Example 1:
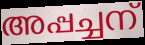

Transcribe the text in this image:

അപ്പച്ചന്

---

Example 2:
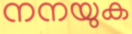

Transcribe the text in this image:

നനയുക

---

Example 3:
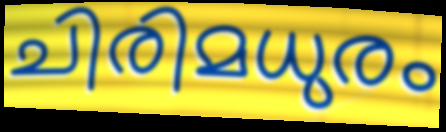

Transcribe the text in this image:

ചിരിമധുരം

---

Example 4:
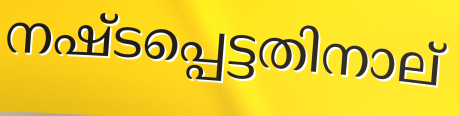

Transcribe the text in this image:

നഷ്ടപ്പെട്ടതിനാല്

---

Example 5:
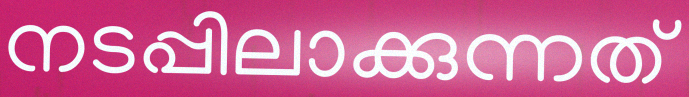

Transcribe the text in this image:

നടപ്പിലാക്കുന്നത്